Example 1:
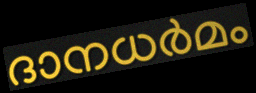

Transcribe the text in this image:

ദാനധർമം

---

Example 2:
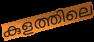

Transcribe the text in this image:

കുളത്തിലെ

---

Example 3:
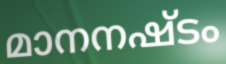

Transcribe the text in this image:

മാനനഷ്ടം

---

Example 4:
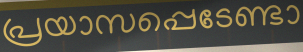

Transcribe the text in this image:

പ്രയാസപ്പെടേണ്ടാ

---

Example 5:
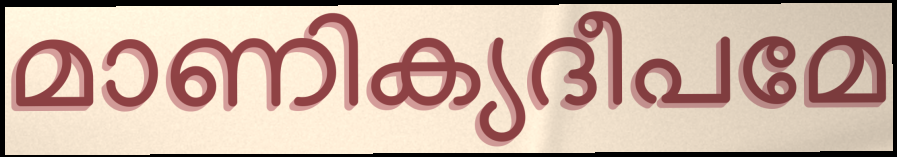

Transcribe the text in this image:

മാണിക്യദീപമേ